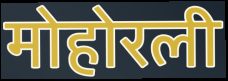
मोहोरली